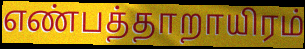
எண்பத்தாறாயிரம்